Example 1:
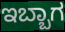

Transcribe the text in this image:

ಇಬ್ಬಾಗ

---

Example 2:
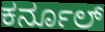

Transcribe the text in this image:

ಕರ್ನೂಲ್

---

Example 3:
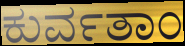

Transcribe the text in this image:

ಕುರ್ವತಾಂ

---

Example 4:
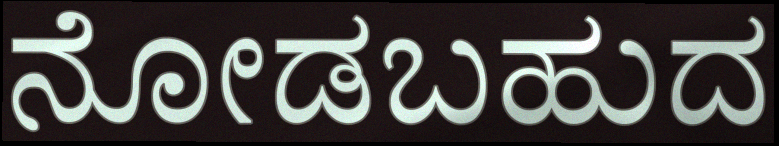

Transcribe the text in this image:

ನೋಡಬಹುದ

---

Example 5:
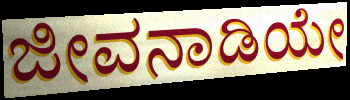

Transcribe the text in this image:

ಜೀವನಾಡಿಯೇ